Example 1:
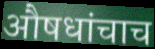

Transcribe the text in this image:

औषधांचाच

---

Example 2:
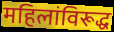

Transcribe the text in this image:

महिलांविरूद्ध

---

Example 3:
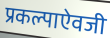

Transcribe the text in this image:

प्रकल्पाऐवजी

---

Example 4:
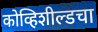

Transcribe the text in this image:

कोव्हिशील्डचा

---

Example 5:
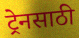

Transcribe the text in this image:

ट्रेनसाठी